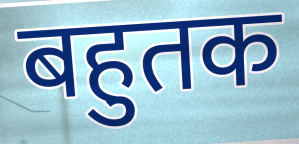
बहुतक